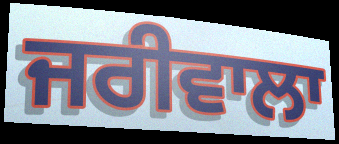
ਜਰੀਵਾਲਾ